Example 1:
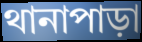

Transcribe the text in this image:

থানাপাড়া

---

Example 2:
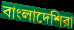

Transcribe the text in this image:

বাংলাদেশিরা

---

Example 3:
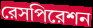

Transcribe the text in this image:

রেসপিরেশন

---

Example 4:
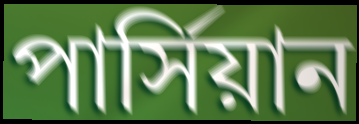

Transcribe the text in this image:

পার্সিয়ান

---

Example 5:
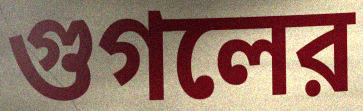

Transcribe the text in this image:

গুগলের